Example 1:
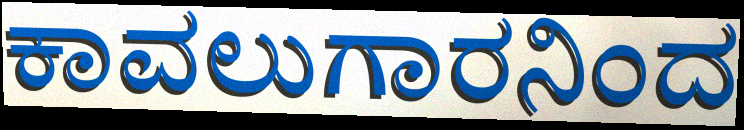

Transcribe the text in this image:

ಕಾವಲುಗಾರನಿಂದ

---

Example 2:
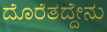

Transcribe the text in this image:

ದೊರೆತದ್ದೇನು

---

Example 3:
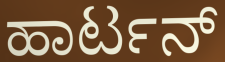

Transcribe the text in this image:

ಹಾರ್ಟನ್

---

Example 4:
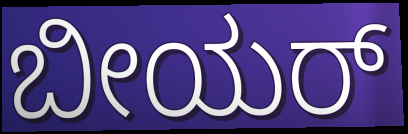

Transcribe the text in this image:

ಬೀಯರ್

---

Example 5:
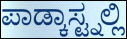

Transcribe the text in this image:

ಪಾಡ್ಕಾಸ್ಟ್ನಲ್ಲಿ